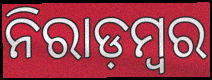
ନିରାଡ଼ମ୍ବର